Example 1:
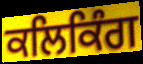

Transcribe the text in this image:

ਕਲਿਕਿੰਗ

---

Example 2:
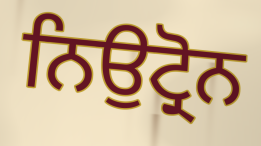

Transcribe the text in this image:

ਨਿਉਟ੍ਰੋਨ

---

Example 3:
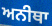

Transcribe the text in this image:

ਅਨੀਥਾ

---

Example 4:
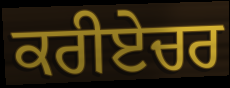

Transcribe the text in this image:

ਕਰੀਏਚਰ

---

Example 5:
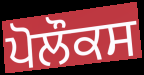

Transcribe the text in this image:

ਪੋਲੌਕਸ